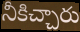
నీకిచ్చారు